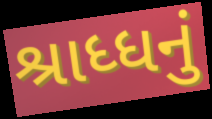
શ્રાધ્ધનું